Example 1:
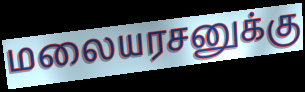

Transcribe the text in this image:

மலையரசனுக்கு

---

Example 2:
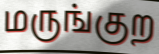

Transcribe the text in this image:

மருங்குற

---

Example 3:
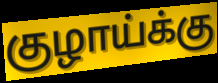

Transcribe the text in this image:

குழாய்க்கு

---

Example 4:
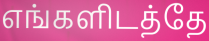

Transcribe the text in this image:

எங்களிடத்தே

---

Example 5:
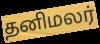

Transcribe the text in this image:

தனிமலர்